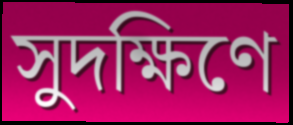
সুদক্ষিণে